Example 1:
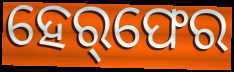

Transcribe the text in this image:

ହେର୍‌ଫେର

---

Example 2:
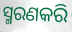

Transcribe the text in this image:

ସ୍ମରଣକରି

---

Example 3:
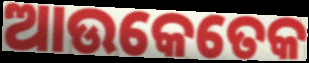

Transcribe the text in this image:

ଆଉକେତେକ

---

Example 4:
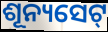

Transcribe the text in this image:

ଶୂନ୍ୟସେଟ୍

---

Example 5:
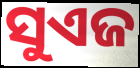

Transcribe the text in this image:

ସୁଏଜ